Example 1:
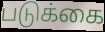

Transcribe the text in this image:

படுக்கை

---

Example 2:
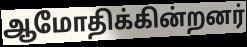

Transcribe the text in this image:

ஆமோதிக்கின்றனர்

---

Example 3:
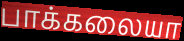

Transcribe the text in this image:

பாக்கலையா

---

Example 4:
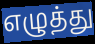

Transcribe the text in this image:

எழுத்து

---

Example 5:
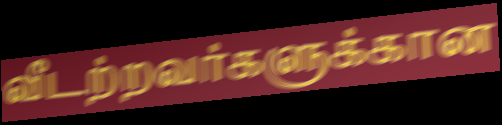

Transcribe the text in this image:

வீடற்றவர்களுக்கான